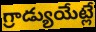
గ్రాడ్యుయేట్లే